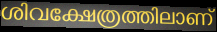
ശിവക്ഷേത്രത്തിലാണ്